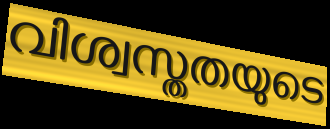
വിശ്വസ്തതയുടെ